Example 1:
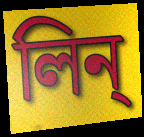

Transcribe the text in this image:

লিন্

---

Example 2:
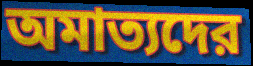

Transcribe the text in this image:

অমাত্যদের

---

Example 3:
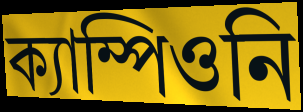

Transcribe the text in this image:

ক্যাম্পিওনি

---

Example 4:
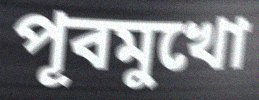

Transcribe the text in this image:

পূবমুখো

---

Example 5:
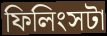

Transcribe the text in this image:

ফিলিংসটা